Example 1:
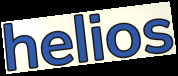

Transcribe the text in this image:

helios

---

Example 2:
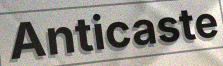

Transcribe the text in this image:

Anticaste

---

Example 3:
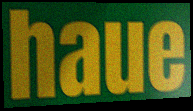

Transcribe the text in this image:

haue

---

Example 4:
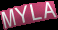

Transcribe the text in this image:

MYLA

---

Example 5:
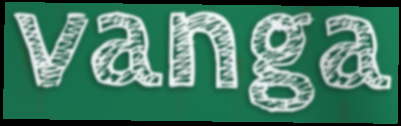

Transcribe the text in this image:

vanga